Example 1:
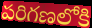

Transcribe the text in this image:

పరిగణలోకి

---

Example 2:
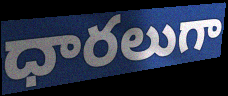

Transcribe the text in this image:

ధారలుగా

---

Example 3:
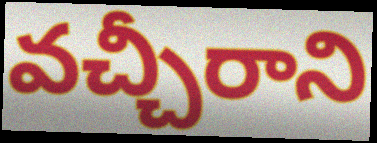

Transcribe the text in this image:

వచ్చీరాని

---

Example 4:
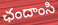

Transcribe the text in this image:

ఛందాంసి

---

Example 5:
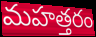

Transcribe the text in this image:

మహత్తరం